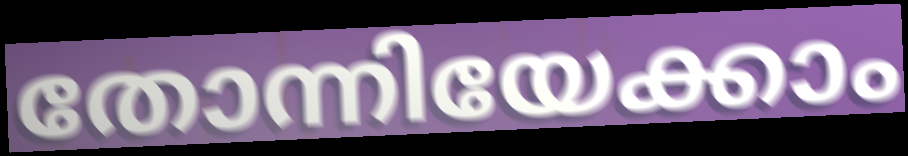
തോന്നിയേക്കാം